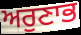
ਅਰੁਣਾਭ